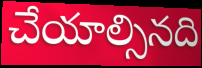
చేయాల్సినది